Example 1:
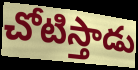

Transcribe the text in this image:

చోటిస్తాడు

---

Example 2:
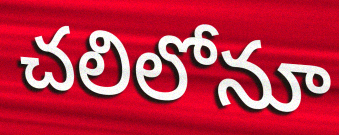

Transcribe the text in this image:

చలిలోనూ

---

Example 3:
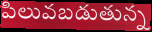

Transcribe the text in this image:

పిలువబడుతున్న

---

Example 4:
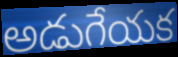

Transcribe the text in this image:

అడుగేయక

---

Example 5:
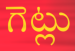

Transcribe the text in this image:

గెట్లు